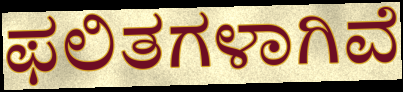
ಫಲಿತಗಳಾಗಿವೆ